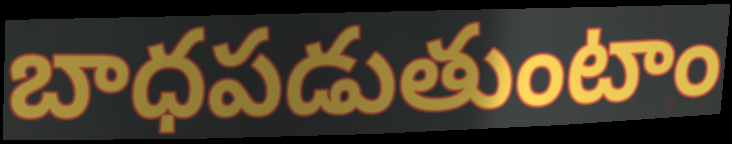
బాధపడుతుంటాం